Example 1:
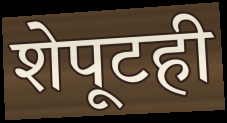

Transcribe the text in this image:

शेपूटही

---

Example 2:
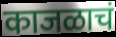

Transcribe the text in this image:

काजळाचं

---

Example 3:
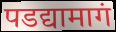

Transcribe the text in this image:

पडद्यामागं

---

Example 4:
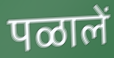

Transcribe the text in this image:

पळालें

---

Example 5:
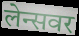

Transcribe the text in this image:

लेन्सवर